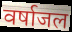
वर्षाजल